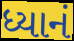
ધ્યાનં